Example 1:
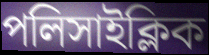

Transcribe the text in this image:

পলিসাইক্লিক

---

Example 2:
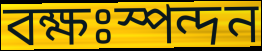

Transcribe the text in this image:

বক্ষঃস্পন্দন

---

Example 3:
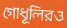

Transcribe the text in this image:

গোধূলিরও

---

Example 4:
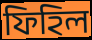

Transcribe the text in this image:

ফিহিল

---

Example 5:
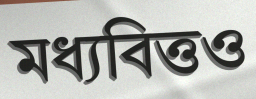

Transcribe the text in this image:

মধ্যবিত্তও